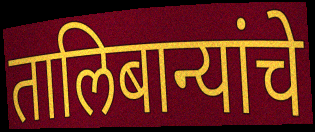
तालिबान्यांचे